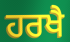
ਹਰਖੈ